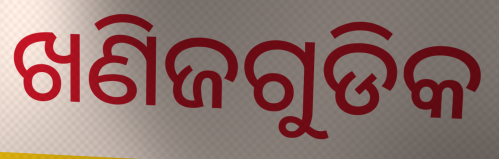
ଖଣିଜଗୁଡିକ